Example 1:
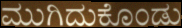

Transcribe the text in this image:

ಮುಗಿದುಕೊಂಡು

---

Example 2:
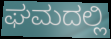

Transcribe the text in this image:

ಘಮದಲ್ಲಿ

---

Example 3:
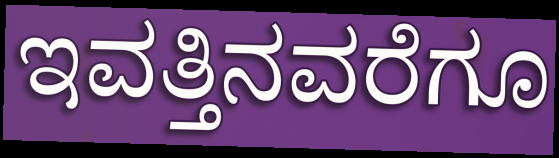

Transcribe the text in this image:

ಇವತ್ತಿನವರೆಗೂ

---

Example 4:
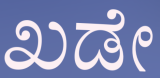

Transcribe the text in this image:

ಖಡೇ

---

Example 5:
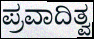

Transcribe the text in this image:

ಪ್ರವಾದಿತ್ವ